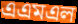
এএমএল